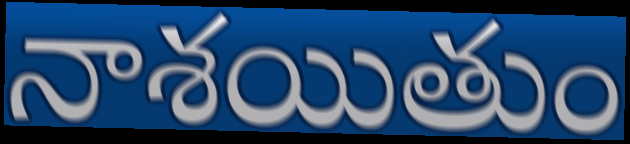
నాశయితుం